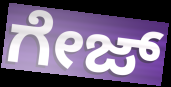
ಗೇಜ್